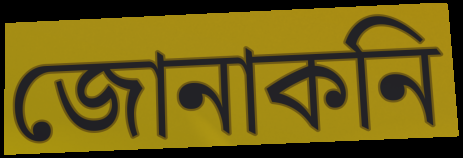
জোনাকনি